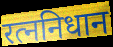
रत्ननिधान